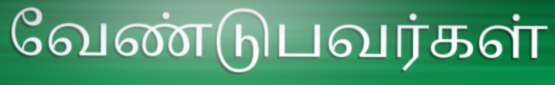
வேண்டுபவர்கள்